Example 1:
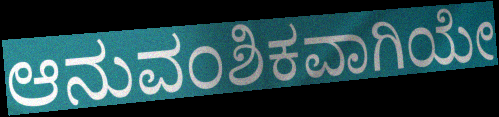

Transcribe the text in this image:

ಆನುವಂಶಿಕವಾಗಿಯೇ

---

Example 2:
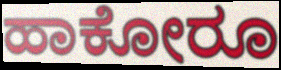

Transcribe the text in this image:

ಹಾಕೋರೂ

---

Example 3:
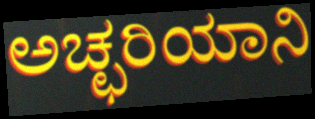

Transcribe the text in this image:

ಅಚ್ಛರಿಯಾನಿ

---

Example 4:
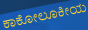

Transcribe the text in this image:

ಕಾಕೋಲೂಕೀಯ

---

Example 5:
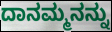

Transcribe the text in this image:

ದಾನಮ್ಮನನ್ನು